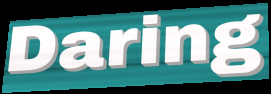
Daring